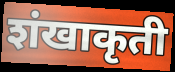
शंखाकृती